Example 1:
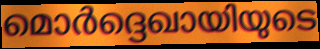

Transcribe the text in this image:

മൊർദ്ദെഖായിയുടെ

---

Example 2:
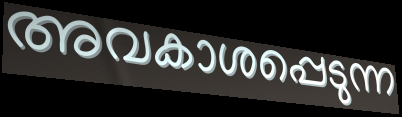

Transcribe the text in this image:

അവകാശപ്പെടുന്ന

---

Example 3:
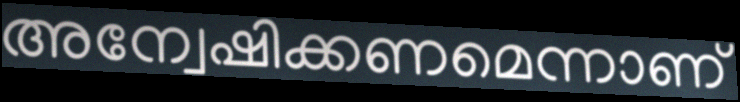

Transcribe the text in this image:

അന്വേഷിക്കണമെന്നാണ്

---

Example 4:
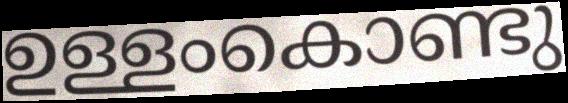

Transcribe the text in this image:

ഉള്ളംകൊണ്ടു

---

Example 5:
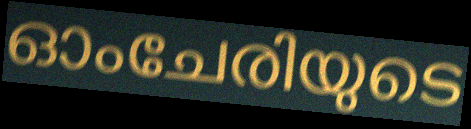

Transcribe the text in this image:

ഓംചേരിയുടെ